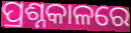
ପ୍ରଶ୍ନକାଳରେ